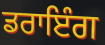
ਡਰਾਇੰਗ